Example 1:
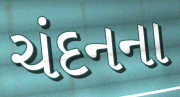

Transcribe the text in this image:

ચંદનના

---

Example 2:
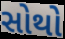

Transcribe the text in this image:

સોથો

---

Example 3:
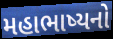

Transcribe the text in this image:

મહાભાષ્યનો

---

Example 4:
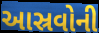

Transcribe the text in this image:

આસ્રવોની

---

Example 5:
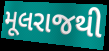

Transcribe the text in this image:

મૂલરાજથી